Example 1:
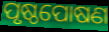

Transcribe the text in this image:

ପୃଷ୍ଠପୋଷଣ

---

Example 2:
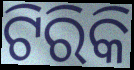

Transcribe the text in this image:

ଟିରିକି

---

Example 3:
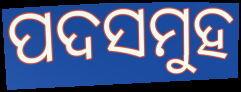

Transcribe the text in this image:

ପଦସମୁହ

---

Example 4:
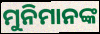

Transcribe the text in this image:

ମୁନିମାନଙ୍କ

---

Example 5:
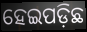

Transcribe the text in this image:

ହେଇପଡ଼ିଛ